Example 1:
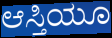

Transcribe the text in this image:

ಆಸ್ತಿಯೂ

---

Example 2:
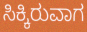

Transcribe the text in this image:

ಸಿಕ್ಕಿರುವಾಗ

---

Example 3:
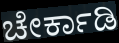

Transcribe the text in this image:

ಚೇರ್ಕಾಡಿ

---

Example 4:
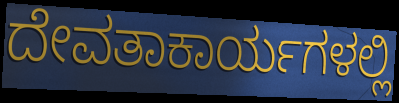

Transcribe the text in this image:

ದೇವತಾಕಾರ್ಯಗಳಲ್ಲಿ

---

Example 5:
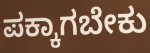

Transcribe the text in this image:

ಪಕ್ಕಾಗಬೇಕು